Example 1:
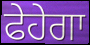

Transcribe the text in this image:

ਫੇਹੇਗਾ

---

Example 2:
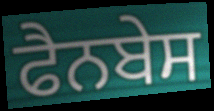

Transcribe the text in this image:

ਫੈਨਬੇਸ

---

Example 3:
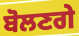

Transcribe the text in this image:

ਬੋਲਣਗੇ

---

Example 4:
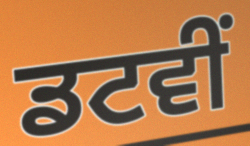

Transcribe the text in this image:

ਡਟਵੀਂ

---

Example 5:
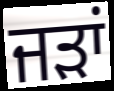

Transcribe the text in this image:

ਜੜਾਂ